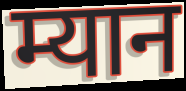
म्यान